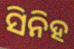
ସିନିହ